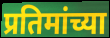
प्रतिमांच्या